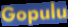
Gopulu